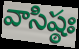
వాసిష్ఠః